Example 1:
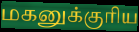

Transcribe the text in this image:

மகனுக்குரிய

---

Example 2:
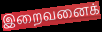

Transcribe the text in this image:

இறைவனைக்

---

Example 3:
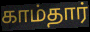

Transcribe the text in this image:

காம்தார்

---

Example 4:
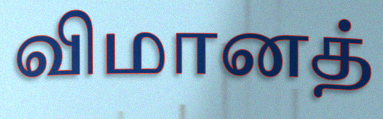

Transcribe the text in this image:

விமானத்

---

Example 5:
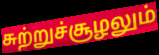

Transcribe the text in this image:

சுற்றுச்சூழலும்